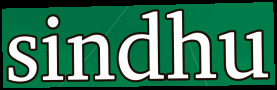
sindhu